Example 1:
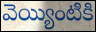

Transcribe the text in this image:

వెయ్యింటికి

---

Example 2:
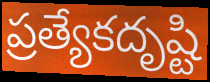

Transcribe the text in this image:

ప్రత్యేకదృష్టి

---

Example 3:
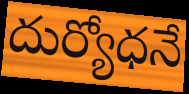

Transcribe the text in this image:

దుర్యోధనే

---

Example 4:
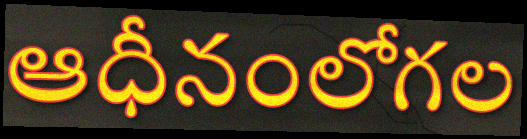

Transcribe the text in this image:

ఆధీనంలోగల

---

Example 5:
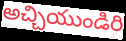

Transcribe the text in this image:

అచ్చియుండిరి